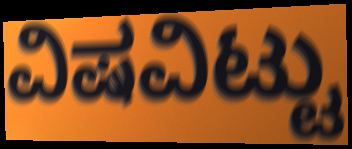
ವಿಷವಿಟ್ಟು